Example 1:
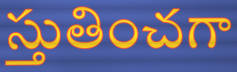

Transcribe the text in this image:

స్తుతించగా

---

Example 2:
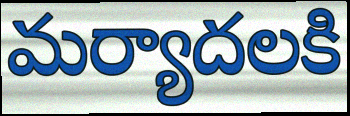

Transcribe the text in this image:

మర్యాదలకి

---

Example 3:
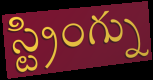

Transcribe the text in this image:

స్ట్రింగ్ను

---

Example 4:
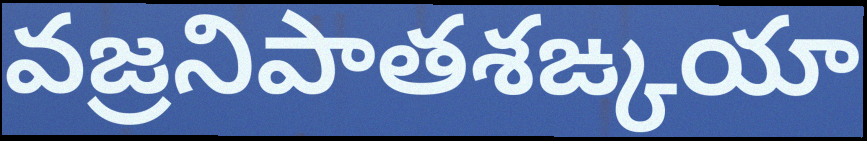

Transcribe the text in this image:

వజ్రనిపాతశఙ్కయా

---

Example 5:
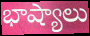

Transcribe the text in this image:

భాష్యాలు